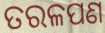
ତରଳପଣ